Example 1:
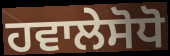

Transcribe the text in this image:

ਹਵਾਲੇਸੋਧੋ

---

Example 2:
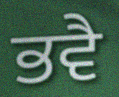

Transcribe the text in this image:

ਭਵੈ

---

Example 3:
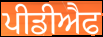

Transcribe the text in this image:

ਪੀਡੀਐਫ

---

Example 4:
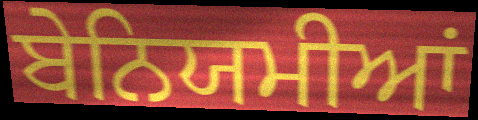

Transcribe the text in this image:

ਬੇਨਿਯਮੀਆਂ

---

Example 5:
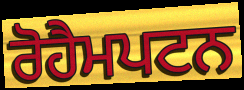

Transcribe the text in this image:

ਰੋਹੈਮਪਟਨ